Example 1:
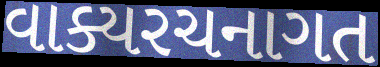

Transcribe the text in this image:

વાક્યરચનાગત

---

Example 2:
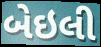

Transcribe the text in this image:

બેઇલી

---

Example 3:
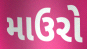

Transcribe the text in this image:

માઉરો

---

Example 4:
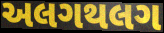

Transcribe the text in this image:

અલગથલગ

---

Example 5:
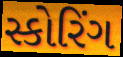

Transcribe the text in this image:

સ્કોરિંગ